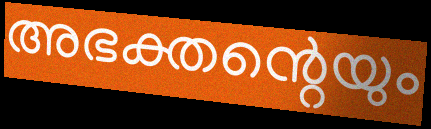
അഭക്തന്റെയും